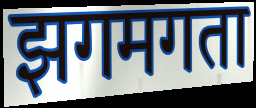
झगमगता